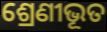
ଶ୍ରେଣୀଭୂତ